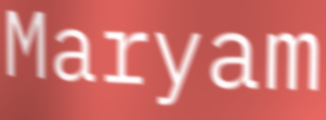
Maryam